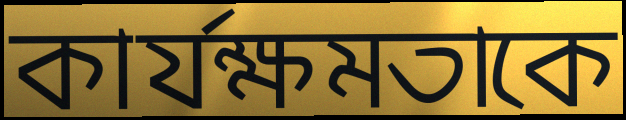
কার্যক্ষমতাকে